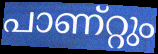
പാണ്റ്റും